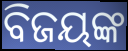
ବିଜୟଙ୍କ